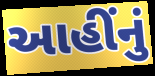
આહીંનું